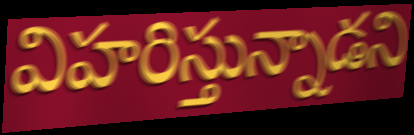
విహరిస్తున్నాడని